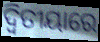
ଦ୍ୱିତୀୟାରେ